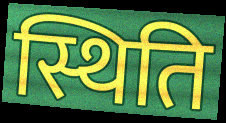
स्थिति